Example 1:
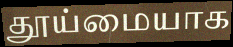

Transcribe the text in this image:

தூய்மையாக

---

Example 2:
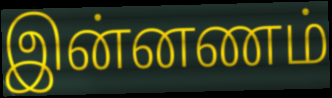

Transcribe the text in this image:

இன்னணம்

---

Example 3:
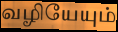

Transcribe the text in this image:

வழியேயும்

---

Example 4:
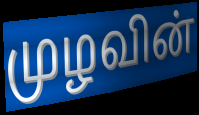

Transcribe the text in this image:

முழவின்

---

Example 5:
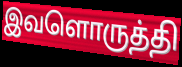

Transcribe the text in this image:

இவளொருத்தி